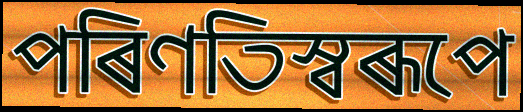
পৰিণতিস্বৰূপে